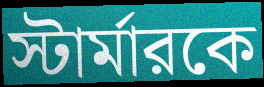
স্টার্মারকে